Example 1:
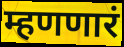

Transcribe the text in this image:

म्हणणारं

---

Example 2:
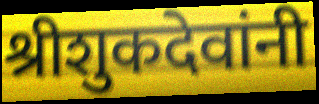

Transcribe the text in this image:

श्रीशुकदेवांनी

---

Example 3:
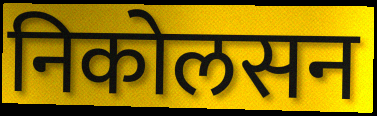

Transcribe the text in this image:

निकोलसन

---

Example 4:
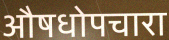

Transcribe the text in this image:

औषधोपचारा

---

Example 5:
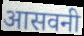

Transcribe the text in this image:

आसवनी